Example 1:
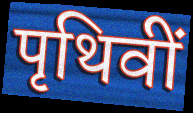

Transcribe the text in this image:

पृथिवीं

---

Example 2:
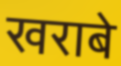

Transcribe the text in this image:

खराबे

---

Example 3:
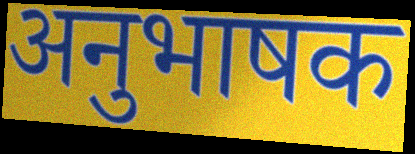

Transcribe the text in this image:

अनुभाषक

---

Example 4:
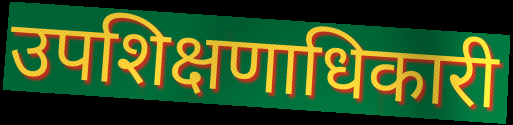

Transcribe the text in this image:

उपशिक्षणाधिकारी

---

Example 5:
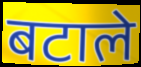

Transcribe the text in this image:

बटाले